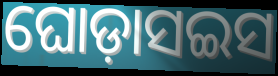
ଘୋଡ଼ାସଇସ